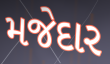
મજેદાર